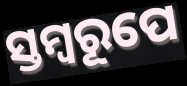
ସ୍ତମ୍ବରୂପେ